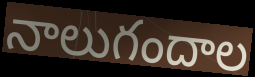
నాలుగందాల